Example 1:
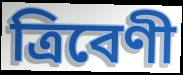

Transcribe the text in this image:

ত্রিবেণী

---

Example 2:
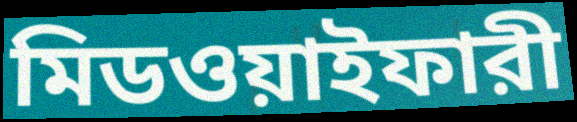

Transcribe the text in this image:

মিডওয়াইফারী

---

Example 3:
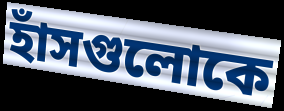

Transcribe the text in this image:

হাঁসগুলোকে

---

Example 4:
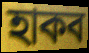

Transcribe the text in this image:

হাকব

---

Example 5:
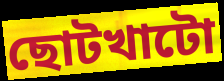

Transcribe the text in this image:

ছোটখাটো